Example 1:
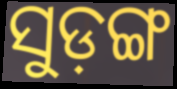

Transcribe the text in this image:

ସୁଡ଼ଙ୍ଗ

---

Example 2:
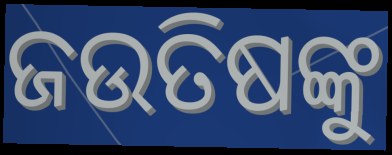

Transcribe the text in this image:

ଜଉତିଷଙ୍କୁ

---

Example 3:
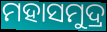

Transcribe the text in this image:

ମହାସମୁଦ୍ର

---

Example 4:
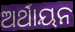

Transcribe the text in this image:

ଅର୍ଥାୟନ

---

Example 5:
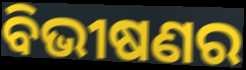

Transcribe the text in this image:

ବିଭୀଷଣର